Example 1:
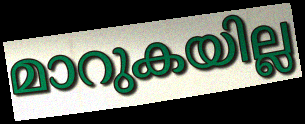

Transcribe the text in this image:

മാറുകയില്ല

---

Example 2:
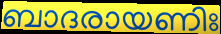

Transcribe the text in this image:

ബാദരായണിഃ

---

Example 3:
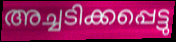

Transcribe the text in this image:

അച്ചടിക്കപ്പെട്ടു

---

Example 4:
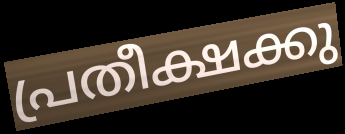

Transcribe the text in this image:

പ്രതീക്ഷക്കു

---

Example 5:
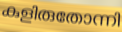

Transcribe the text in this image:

കുളിരുതോന്നി